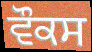
ਵੌਕਸ